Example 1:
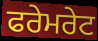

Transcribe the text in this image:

ਫਰੇਮਰੇਟ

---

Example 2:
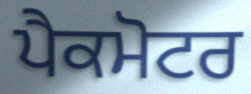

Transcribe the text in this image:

ਪੈਕਮੋਟਰ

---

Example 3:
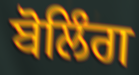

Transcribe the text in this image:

ਬੋਲਿੰਗ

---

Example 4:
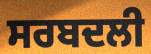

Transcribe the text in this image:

ਸਰਬਦਲੀ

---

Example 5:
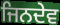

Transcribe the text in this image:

ਜਿਨਦੇਵ